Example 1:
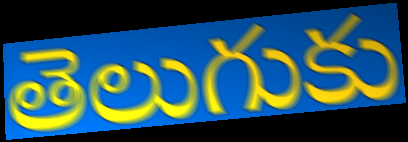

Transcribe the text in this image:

తెలుగుకు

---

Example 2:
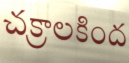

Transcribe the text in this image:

చక్రాలకింద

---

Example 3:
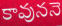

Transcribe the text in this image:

కావుననె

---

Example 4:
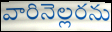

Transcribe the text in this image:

వారినెల్లరను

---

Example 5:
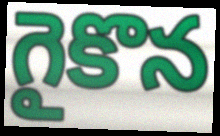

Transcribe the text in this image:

గైకొన